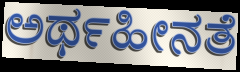
ಅರ್ಥಹೀನತೆ